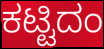
ಕಟ್ಟಿದಂ